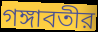
গঙ্গাবতীর